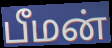
பீமன்